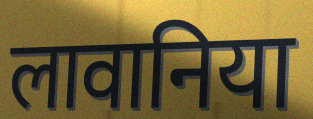
लावानिया